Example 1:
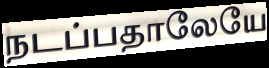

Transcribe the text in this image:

நடப்பதாலேயே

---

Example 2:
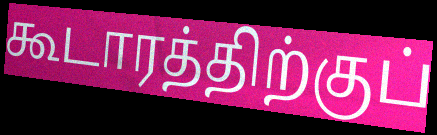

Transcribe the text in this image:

கூடாரத்திற்குப்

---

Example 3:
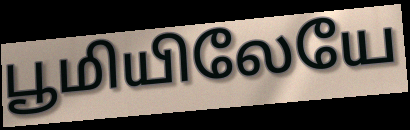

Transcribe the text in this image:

பூமியிலேயே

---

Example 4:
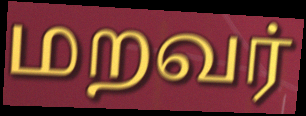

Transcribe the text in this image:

மறவர்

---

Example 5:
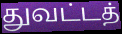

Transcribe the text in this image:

துவட்டத்